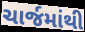
ચાર્જમાંથી